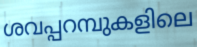
ശവപ്പറമ്പുകളിലെ